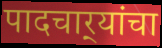
पादचार्यांचा